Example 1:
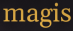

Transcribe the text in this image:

magis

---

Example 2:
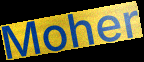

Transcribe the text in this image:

Moher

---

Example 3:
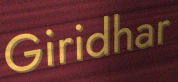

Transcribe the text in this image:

Giridhar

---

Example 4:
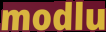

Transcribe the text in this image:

modlu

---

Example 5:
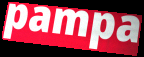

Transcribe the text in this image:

pampa